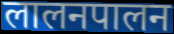
लालनपालन